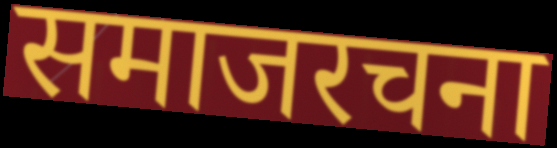
समाजरचना